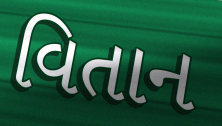
વિતાન